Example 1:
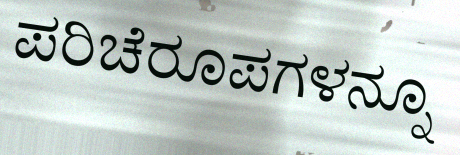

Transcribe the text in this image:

ಪರಿಚೆರೂಪಗಳನ್ನೂ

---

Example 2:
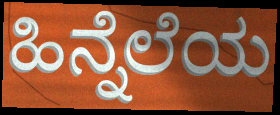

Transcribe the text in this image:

ಹಿನ್ನೆಲೆಯ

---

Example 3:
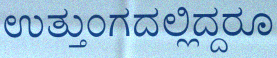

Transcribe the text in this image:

ಉತ್ತುಂಗದಲ್ಲಿದ್ದರೂ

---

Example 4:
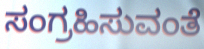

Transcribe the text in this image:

ಸಂಗ್ರಹಿಸುವಂತೆ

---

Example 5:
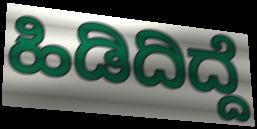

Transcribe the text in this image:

ಹಿಡಿದಿದ್ದೆ